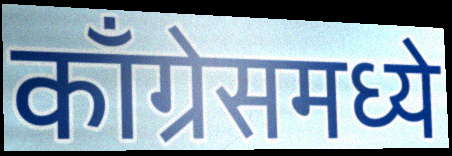
काँग्रेसमध्ये